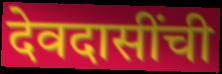
देवदासींची